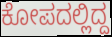
ಕೋಪದಲ್ಲಿದ್ದ